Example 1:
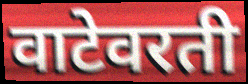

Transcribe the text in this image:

वाटेवरती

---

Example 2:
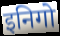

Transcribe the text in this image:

इनिगो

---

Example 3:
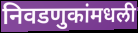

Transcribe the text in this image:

निवडणुकांमधली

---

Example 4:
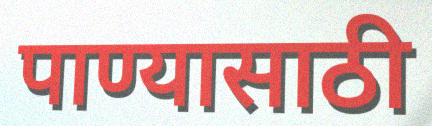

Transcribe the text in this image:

पाण्यासाठी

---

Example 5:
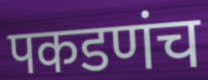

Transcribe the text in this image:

पकडणंच